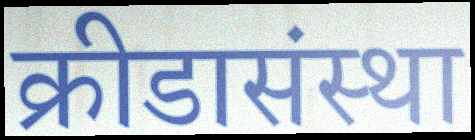
क्रीडासंस्था